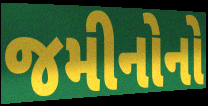
જમીનોનો